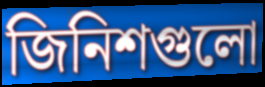
জিনিশগুলো